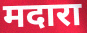
मदारा